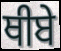
ਥੀਬੇ